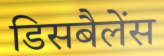
डिसबैलेंस